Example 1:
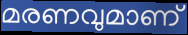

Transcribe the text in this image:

മരണവുമാണ്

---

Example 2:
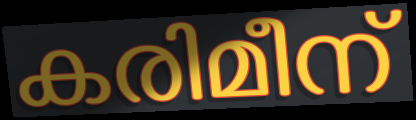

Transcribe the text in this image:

കരിമീന്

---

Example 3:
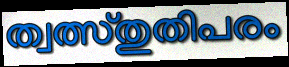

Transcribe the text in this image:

ത്വത്സ്തുതിപരം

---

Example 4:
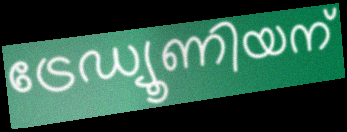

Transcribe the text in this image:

ട്രേഡ്യൂണിയന്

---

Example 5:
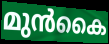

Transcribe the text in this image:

മുൻകൈ